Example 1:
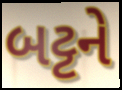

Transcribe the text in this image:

બટ્ટને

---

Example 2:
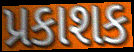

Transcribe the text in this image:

પ્રકાશક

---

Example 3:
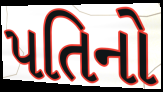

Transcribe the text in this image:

પતિનો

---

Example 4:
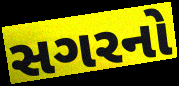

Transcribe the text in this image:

સગરનો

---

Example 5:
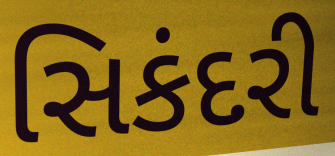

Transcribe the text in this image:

સિકંદરી